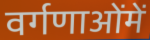
वर्गणाओंमें